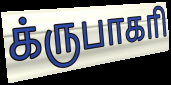
க்ருபாகரி